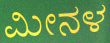
ಮೀನಳ